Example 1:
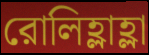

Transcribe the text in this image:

রোলিহ্লাহ্লা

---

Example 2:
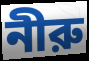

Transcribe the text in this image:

নীরু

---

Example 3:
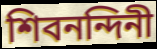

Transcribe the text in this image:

শিবনন্দিনী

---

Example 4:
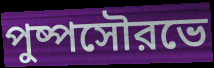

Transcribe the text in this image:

পুষ্পসৌরভে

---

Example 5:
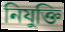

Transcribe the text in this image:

নিযুক্তি